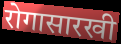
रोगासारखी